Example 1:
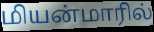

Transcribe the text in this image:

மியன்மாரில்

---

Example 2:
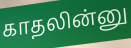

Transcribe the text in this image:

காதலின்னு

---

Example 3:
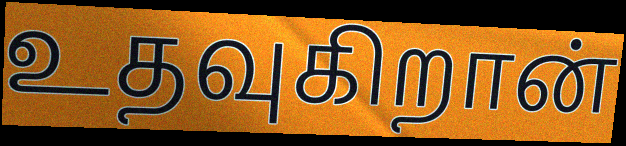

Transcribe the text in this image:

உதவுகிறான்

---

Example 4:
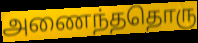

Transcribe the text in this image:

அணைந்ததொரு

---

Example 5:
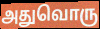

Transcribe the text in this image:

அதுவொரு